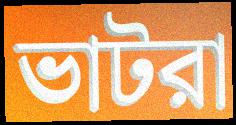
ভাটরা